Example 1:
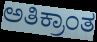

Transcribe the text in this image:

ಅತಿಕ್ರಾಂತ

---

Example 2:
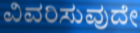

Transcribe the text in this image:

ವಿವರಿಸುವುದೇ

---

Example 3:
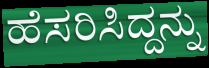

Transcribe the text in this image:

ಹೆಸರಿಸಿದ್ದನ್ನು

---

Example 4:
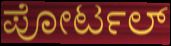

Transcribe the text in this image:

ಪೋರ್ಟಲ್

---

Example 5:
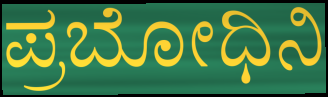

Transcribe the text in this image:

ಪ್ರಬೋಧಿನಿ